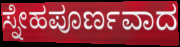
ಸ್ನೇಹಪೂರ್ಣವಾದ